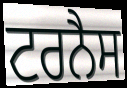
ਟਰਨੈਸ